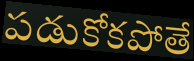
పడుకోకపోతే